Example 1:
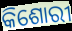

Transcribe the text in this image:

କିଶୋରୀ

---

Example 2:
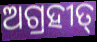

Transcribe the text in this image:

ଅଗ୍ରହୀତ୍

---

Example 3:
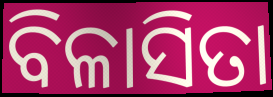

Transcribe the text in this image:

ବିଳାସିତା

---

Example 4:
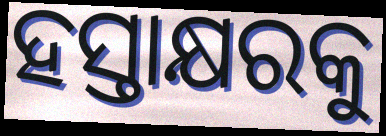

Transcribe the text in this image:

ହସ୍ତାକ୍ଷରକୁ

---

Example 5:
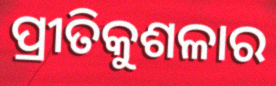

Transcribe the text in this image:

ପ୍ରୀତିକୁଶଳାର